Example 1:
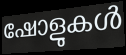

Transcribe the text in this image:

ഷോളുകൾ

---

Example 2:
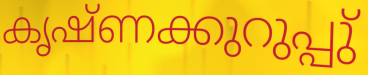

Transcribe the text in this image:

കൃഷ്ണക്കുറുപ്പു്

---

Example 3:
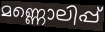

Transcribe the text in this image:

മണ്ണൊലിപ്പ്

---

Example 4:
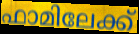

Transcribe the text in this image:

ഫാമിലേക്ക്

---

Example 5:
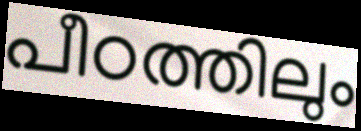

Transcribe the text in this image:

പീഠത്തിലും